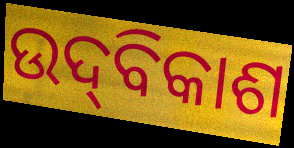
ଉଦ୍‌ବିକାଶ